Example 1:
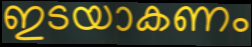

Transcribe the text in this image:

ഇടയാകണം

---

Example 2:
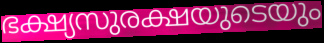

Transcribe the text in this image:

ഭക്ഷ്യസുരക്ഷയുടെയും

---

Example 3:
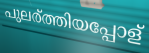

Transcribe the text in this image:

പുലര്ത്തിയപ്പോള്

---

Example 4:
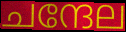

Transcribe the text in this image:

ചന്ദേല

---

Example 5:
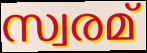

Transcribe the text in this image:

സ്വരമ്